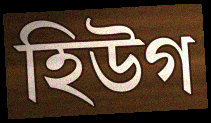
হিউগ